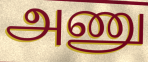
அணு